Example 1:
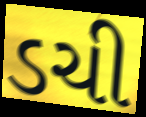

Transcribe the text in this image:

ડચી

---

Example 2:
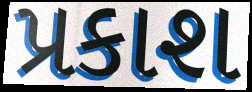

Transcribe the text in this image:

પ્રકાશ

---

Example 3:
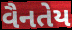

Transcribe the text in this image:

વૈનતેય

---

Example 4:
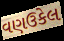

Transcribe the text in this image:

વણઉકેલ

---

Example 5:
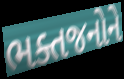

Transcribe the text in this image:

ભક્તજનોને